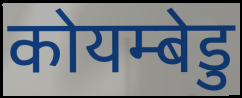
कोयम्बेडु